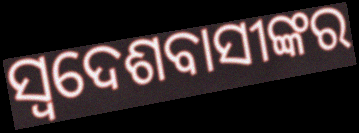
ସ୍ୱଦେଶବାସୀଙ୍କର